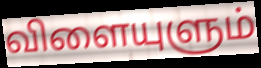
விளையுளும்